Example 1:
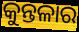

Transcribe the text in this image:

କୁନ୍ତଳାର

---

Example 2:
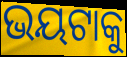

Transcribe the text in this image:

ଭୟଟାକୁ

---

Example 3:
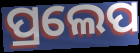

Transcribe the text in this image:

ପ୍ରଲେପ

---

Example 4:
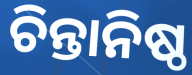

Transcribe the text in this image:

ଚିନ୍ତାନିଷ୍ଠ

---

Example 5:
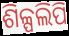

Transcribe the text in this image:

ଶିଳ୍ପଲିପି